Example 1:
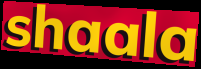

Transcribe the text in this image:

shaala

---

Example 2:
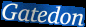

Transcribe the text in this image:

Gatedon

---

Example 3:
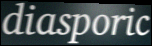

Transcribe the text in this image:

diasporic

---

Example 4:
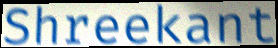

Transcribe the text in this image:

Shreekant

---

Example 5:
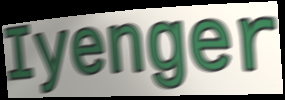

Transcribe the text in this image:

Iyenger